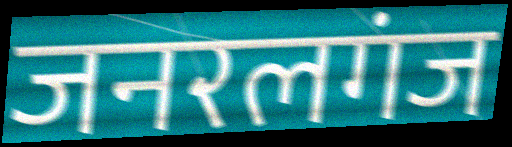
जनरलगंज